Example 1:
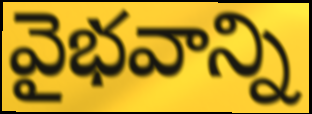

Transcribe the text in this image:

వైభవాన్ని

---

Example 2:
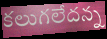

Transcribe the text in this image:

కలుగలేదన్న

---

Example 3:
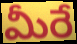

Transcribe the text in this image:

మీరే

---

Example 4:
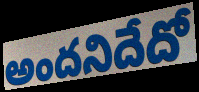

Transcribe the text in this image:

అందనిదేదో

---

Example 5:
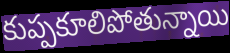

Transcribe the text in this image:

కుప్పకూలిపోతున్నాయి